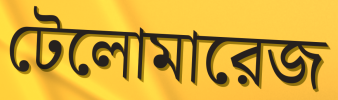
টেলোমারেজ